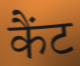
कैंट